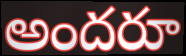
అందరూ